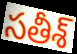
సతీశ్